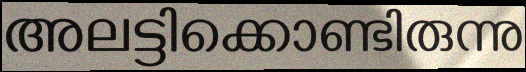
അലട്ടിക്കൊണ്ടിരുന്നു